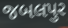
જબલપુર